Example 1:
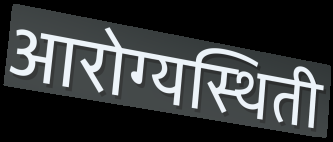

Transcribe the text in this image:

आरोग्यस्थिती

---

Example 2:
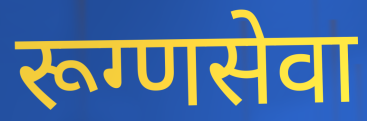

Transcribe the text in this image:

रूग्णसेवा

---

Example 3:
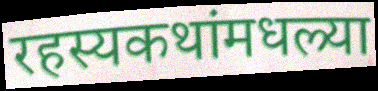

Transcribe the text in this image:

रहस्यकथांमधल्या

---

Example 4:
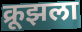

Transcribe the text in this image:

क्रूझला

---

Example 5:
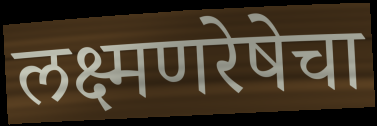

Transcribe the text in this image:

लक्ष्मणरेषेचा